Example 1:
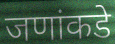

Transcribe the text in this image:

जणांकडे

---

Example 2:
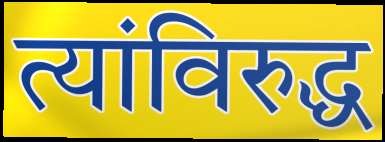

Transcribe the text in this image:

त्यांविरुद्ध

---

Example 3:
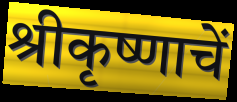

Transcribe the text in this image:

श्रीकृष्णाचें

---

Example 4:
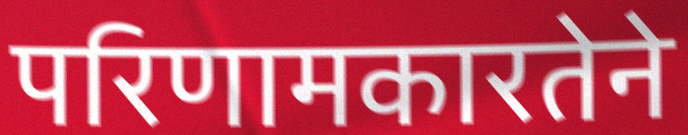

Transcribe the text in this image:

परिणामकारतेने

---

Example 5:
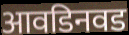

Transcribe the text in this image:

आवडिनवड